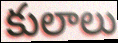
కులాలు